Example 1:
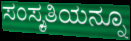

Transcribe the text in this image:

ಸಂಸ್ಕೃತಿಯನ್ನೂ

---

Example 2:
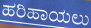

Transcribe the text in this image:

ಹರಿಹಾಯಲು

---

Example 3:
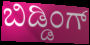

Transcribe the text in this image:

ಬಿಡ್ಡಿಂಗ್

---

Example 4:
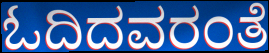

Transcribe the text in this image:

ಓದಿದವರಂತೆ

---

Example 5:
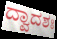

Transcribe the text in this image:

ದ್ವಾದಶಃ